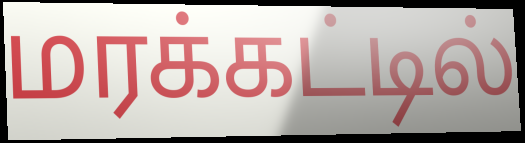
மரக்கட்டில்